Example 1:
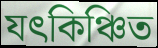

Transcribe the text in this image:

যৎকিঞ্চিত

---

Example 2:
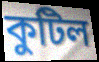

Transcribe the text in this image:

কুটিল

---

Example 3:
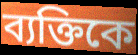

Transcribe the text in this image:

ব্যক্তিকে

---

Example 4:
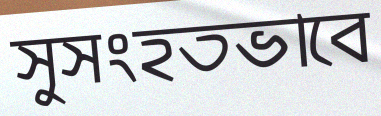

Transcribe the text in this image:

সুসংহতভাবে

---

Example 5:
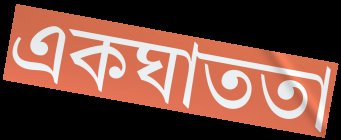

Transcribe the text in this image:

একঘাততা